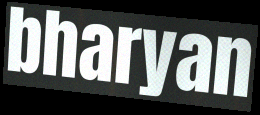
bharyan